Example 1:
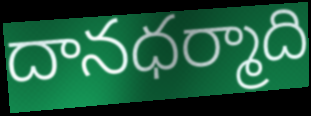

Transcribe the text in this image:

దానధర్మాది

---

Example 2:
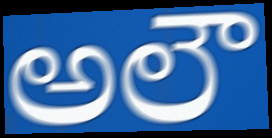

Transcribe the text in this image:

అలౌ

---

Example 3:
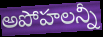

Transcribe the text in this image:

అపోహలన్నీ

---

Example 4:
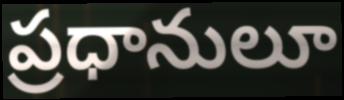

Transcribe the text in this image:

ప్రధానులూ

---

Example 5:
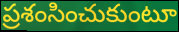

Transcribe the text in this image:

ప్రశంసించుకుంటూ